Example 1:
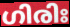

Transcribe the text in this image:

ഗിരിഃ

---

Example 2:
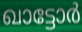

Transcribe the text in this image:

ഖാട്ടോർ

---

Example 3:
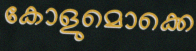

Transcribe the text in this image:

കോളുമൊക്കെ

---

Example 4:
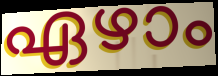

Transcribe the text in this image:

ഏഴാം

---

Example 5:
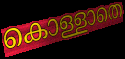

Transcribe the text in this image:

കൊള്ളാതെ